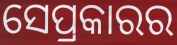
ସେପ୍ରକାରର